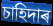
চাহিদাৰ